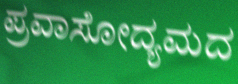
ಪ್ರವಾಸೋದ್ಯಮದ